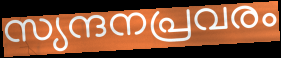
സ്യന്ദനപ്രവരം